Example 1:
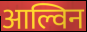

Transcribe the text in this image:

आल्विन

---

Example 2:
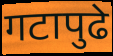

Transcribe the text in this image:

गटापुढे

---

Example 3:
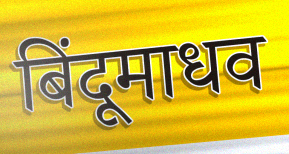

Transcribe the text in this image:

बिंदूमाधव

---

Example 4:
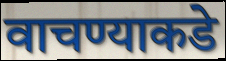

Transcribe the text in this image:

वाचण्याकडे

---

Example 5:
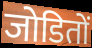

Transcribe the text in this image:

जोडितों